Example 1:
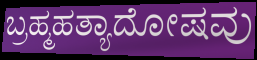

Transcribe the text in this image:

ಬ್ರಹ್ಮಹತ್ಯಾದೋಷವು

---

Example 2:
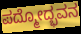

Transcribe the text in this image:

ಪದ್ಮೋದ್ಭವನ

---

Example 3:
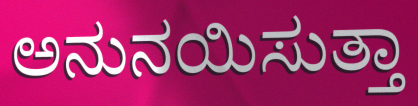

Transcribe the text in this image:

ಅನುನಯಿಸುತ್ತಾ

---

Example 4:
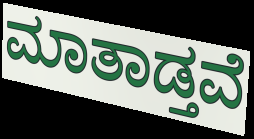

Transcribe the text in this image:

ಮಾತಾಡ್ತವೆ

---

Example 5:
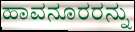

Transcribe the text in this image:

ಹಾವನೂರರನ್ನು